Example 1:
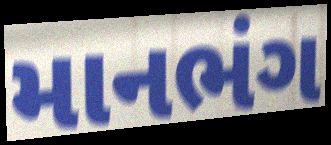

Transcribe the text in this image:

માનભંગ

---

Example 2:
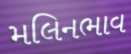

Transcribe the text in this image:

મલિનભાવ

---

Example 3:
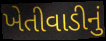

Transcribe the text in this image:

ખેતીવાડીનું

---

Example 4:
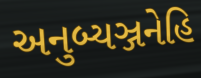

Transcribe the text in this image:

અનુબ્યઞ્જનેહિ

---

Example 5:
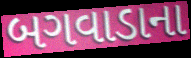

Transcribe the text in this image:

બગવાડાના